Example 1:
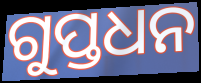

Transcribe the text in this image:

ଗୁପ୍ତଧନ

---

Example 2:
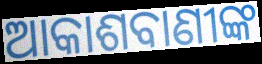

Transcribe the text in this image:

ଆକାଶବାଣୀଙ୍କ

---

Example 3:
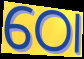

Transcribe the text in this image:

ଠୋ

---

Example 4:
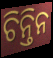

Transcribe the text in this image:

ଚିନ୍ତିନ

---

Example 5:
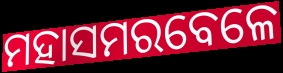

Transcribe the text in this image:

ମହାସମରବେଳେ